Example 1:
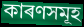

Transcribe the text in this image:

কাৰণসমূহ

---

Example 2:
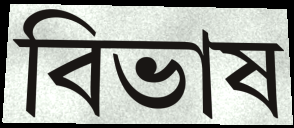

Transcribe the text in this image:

বিভাষ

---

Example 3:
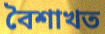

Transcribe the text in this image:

বৈশাখত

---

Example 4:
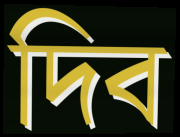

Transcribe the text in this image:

দিব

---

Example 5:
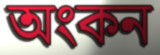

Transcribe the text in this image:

অংকন